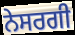
ਨੇਸਰਗੀ